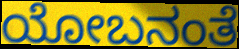
ಯೋಬನಂತೆ